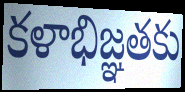
కళాభిజ్ఞతకు